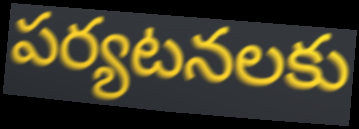
పర్యటనలకు